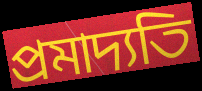
প্রমাদ্যতি